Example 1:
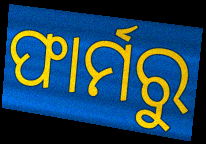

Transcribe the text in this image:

ଫାର୍ମରୁ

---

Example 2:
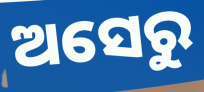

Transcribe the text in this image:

ଅସେରୁ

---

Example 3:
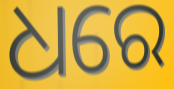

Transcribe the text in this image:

ଧରେ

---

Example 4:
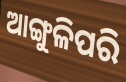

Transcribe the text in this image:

ଆଙ୍ଗୁଳିପରି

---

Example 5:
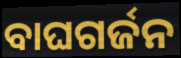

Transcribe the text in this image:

ବାଘଗର୍ଜନ